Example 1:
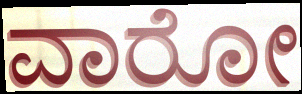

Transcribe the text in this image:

ವಾರೋ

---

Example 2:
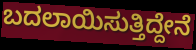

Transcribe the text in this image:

ಬದಲಾಯಿಸುತ್ತಿದ್ದೇನೆ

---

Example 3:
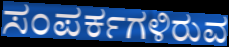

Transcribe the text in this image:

ಸಂಪರ್ಕಗಳಿರುವ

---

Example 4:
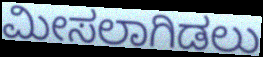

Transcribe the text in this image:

ಮೀಸಲಾಗಿಡಲು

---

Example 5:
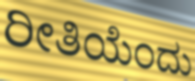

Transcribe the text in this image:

ರೀತಿಯೆಂದು